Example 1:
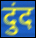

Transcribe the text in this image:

दुंद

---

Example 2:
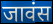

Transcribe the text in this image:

जावंस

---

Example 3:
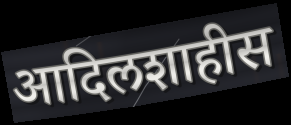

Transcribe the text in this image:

आदिलशाहीस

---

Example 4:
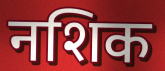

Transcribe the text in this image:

नशिक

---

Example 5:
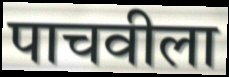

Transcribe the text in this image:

पाचवीला